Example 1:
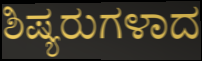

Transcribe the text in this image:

ಶಿಷ್ಯರುಗಳಾದ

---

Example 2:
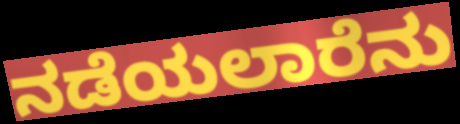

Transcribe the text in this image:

ನಡೆಯಲಾರೆನು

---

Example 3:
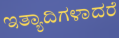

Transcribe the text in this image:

ಇತ್ಯಾದಿಗಳಾದರೆ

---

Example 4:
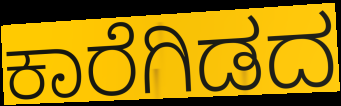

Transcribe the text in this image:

ಕಾರೆಗಿಡದ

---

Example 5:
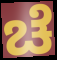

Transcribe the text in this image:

ಚೆ